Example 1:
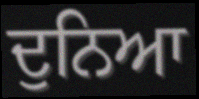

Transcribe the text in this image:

ਦੁਨਿਆ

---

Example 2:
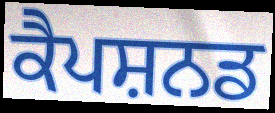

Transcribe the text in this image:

ਕੈਪਸ਼ਨਡ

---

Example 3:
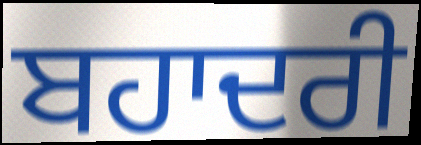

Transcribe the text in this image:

ਬਹਾਦਰੀ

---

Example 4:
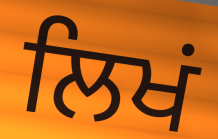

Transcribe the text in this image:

ਲਿਖਂ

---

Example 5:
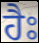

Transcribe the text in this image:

ਹੈਃ